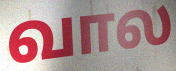
வால